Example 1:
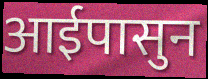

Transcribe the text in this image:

आईपासुन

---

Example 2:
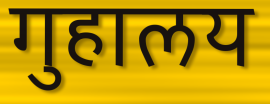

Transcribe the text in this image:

गुहालय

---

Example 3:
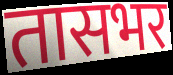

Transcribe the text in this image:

तासभर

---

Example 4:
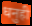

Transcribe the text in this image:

धनुही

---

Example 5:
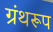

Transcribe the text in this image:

ग्रंथरूप